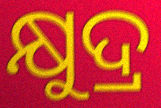
କ୍ଷୁଦ୍ର